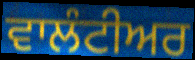
ਵਾਲੰਟੀਅਰ